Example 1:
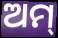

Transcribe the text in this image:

ଅମ୍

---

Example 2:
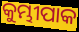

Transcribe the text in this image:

କୁମ୍ଭୀପାକ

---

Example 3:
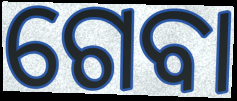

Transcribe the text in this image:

ଗେବା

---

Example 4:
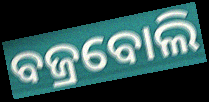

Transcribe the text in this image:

ବଜ୍ରବୋଲି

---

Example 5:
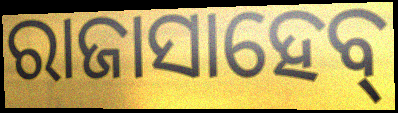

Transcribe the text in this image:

ରାଜାସାହେବ୍